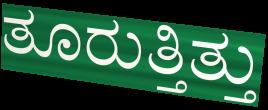
ತೂರುತ್ತಿತ್ತು